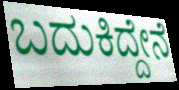
ಬದುಕಿದ್ದೇನೆ